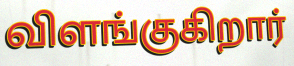
விளங்குகிறார்